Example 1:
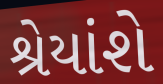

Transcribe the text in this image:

શ્રેયાંશે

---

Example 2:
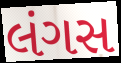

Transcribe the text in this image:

લંગસ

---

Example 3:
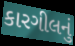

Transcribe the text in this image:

કારગીલનું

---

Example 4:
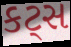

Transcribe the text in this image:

કટ્સ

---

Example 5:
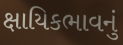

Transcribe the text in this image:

ક્ષાયિકભાવનું